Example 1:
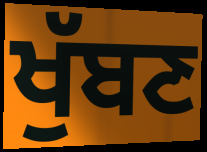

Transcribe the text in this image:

ਖੁੱਬਣ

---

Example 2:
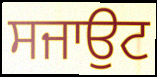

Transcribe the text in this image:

ਸਜਾਉਟ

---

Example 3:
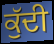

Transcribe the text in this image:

ਕੁੱਦੀ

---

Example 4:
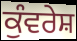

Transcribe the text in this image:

ਕੁੰਵਰੇਸ਼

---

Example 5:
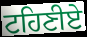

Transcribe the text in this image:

ਟਹਿਣੀਏ